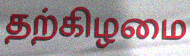
தற்கிழமை